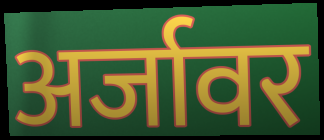
अर्जावर